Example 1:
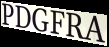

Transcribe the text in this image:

PDGFRA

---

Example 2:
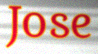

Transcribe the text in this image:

Jose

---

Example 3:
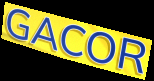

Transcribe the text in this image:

GACOR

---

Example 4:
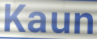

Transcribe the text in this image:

Kaun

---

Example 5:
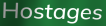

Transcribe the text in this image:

Hostages